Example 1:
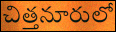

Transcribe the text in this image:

చిత్తనూరులో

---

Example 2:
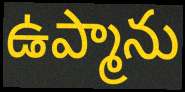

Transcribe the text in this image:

ఉప్మాను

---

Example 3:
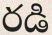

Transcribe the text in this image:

రడి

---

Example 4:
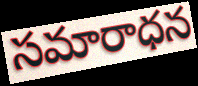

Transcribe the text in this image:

సమారాధన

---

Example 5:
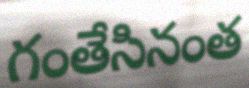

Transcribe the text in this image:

గంతేసినంత